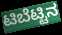
ಟಿಬೆಟ್ಟಿನ